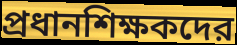
প্রধানশিক্ষকদের